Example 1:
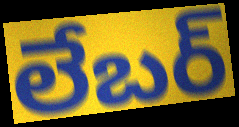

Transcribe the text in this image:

లేబర్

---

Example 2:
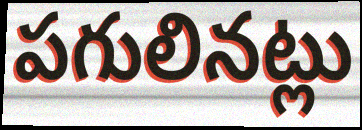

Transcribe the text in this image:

పగులినట్లు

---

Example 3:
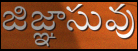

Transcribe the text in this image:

జిజ్ఞాసువు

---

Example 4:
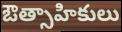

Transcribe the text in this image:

ఔత్సాహికులు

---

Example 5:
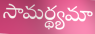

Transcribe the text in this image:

సామర్థ్యమా